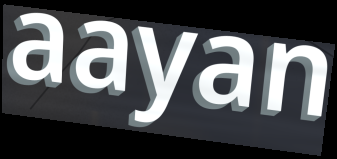
aayan